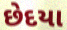
છેદયા